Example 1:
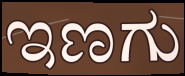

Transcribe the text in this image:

ಇಣಗು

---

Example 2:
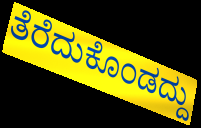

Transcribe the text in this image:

ತೆರೆದುಕೊಂಡದ್ದು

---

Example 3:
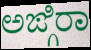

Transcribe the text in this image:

ಅಙ್ಗಿರಾ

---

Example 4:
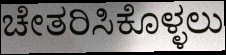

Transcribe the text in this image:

ಚೇತರಿಸಿಕೊಳ್ಳಲು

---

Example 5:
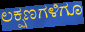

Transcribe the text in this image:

ಲಕ್ಷಣಗಳಿಗೂ